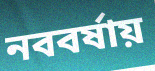
নববর্ষায়